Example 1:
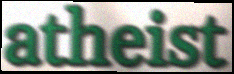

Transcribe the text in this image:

atheist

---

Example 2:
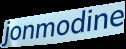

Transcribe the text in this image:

jonmodine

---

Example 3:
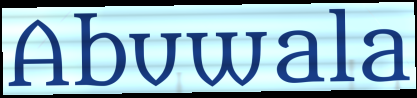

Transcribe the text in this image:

Abuwala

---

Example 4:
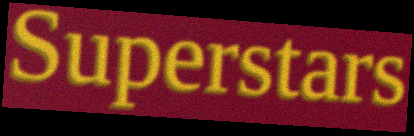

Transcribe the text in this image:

Superstars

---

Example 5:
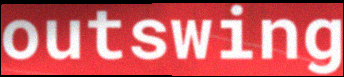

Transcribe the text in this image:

outswing